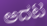
ಅದಟ